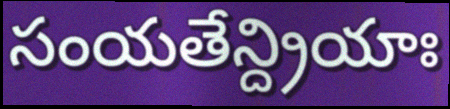
సంయతేన్ద్రియాః